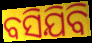
ବସିଯିବି